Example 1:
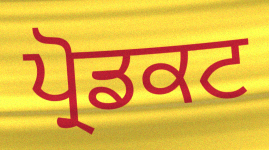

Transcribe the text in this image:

ਪ੍ਰੋਡਕਟ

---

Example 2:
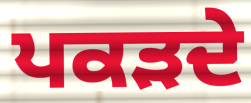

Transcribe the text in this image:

ਪਕੜਦੇ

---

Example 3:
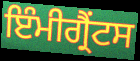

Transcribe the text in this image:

ਇੰਮੀਗ੍ਰੈਂਟਸ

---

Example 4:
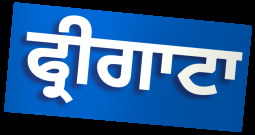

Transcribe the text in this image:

ਫ੍ਰੀਗਾਟਾ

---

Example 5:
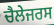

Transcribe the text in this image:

ਚੈਲੇਜਰਸ